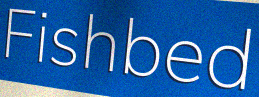
Fishbed